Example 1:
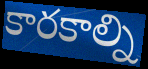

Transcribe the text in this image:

కారకాల్ని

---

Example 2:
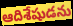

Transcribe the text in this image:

ఆదిశేషుడను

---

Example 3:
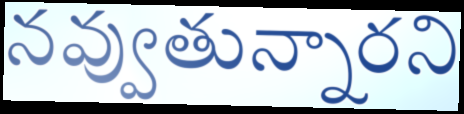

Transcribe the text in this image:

నవ్వుతున్నారని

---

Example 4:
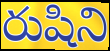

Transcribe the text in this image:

రుషిని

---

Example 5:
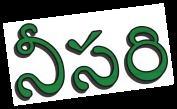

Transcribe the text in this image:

నీసరి